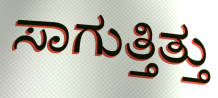
ಸಾಗುತ್ತಿತ್ತು